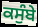
ਕਸੁੰਬੇ